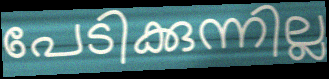
പേടിക്കുന്നില്ല